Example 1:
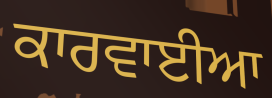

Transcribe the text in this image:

ਕਾਰਵਾਈਆ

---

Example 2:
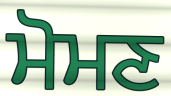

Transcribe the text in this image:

ਮੋਮਣ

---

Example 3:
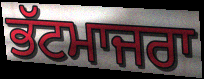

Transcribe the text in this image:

ਭੱਟਮਾਜਰਾ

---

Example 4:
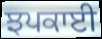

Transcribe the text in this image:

ਝਪਕਾਈ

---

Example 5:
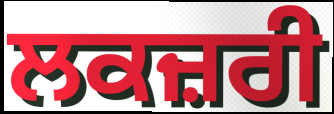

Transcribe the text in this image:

ਲਕਜ਼ਰੀ